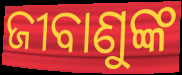
ଜୀବାଣୁଙ୍କ